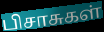
பிசாசுகள்